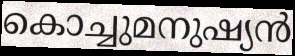
കൊച്ചുമനുഷ്യൻ